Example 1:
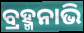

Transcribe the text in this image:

ବ୍ରହ୍ମନାଭି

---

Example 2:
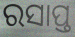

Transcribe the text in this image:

ରସାପ୍ତ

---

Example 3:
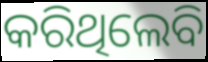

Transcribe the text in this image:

କରିଥିଲେବି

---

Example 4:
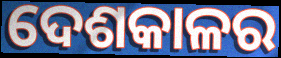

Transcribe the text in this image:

ଦେଶକାଳର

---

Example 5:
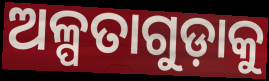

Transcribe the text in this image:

ଅଳ୍ପତାଗୁଡ଼ାକୁ